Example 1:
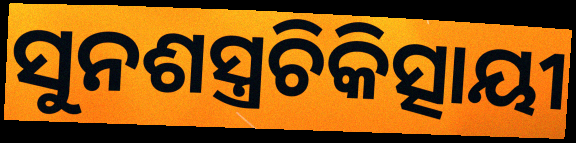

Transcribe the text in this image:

ସୁନଶସ୍ତ୍ରଚିକିତ୍ସାୟୀ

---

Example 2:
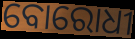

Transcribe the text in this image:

ବୋରୋଧୀ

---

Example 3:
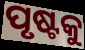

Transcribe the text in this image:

ପୃଷ୍ଟକୁ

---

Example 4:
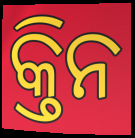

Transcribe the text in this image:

କ୍ତିନ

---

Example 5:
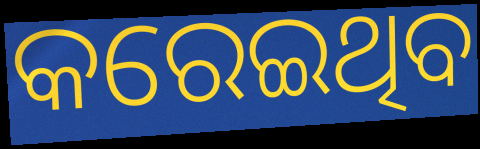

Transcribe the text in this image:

କରେଇଥିବ